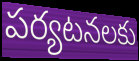
పర్యటనలకు